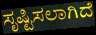
ಸೃಷ್ಟಿಸಲಾಗಿದೆ